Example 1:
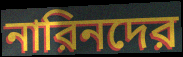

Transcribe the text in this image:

নারিনদের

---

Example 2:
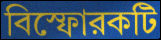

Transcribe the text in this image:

বিস্ফোরকটি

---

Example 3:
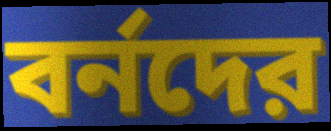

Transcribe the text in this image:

বর্নদের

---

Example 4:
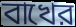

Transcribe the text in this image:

বাখের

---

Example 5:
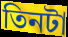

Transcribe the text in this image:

তিনটা